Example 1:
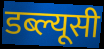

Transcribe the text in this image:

डब्ल्यूसी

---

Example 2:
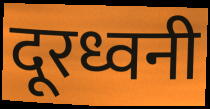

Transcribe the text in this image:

दूरध्वनी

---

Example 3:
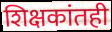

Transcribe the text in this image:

शिक्षकांतही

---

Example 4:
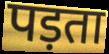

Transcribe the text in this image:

पड़ता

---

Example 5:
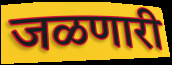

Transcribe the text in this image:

जळणारी